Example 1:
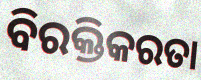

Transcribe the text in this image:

ବିରକ୍ତିକରତା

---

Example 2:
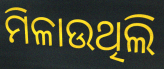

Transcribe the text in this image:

ମିଳାଉଥିଲି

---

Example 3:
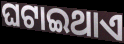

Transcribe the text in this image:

ଘଟାଇଥାଏ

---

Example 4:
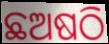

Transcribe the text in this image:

ଛଅଷଠି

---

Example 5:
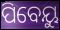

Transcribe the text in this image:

ପିବେୟୁ